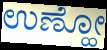
ಉಣ್ಹೋ